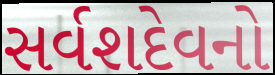
સર્વશદેવનો